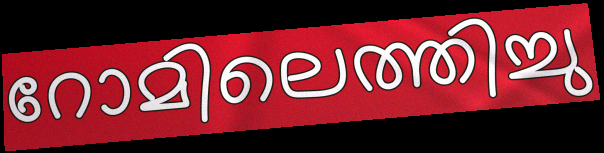
റോമിലെത്തിച്ചു